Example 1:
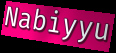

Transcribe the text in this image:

Nabiyyu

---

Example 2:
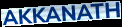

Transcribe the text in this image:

AKKANATH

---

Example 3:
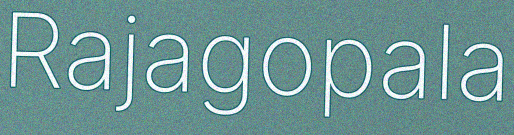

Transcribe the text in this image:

Rajagopala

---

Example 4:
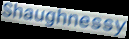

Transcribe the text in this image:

Shaughnessy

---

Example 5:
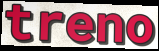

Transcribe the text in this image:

treno